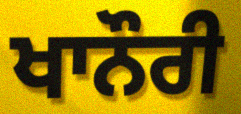
ਖਾਨੌਰੀ